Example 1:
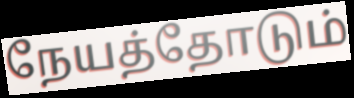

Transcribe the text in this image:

நேயத்தோடும்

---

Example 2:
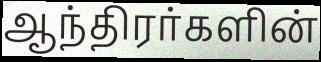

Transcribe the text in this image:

ஆந்திரர்களின்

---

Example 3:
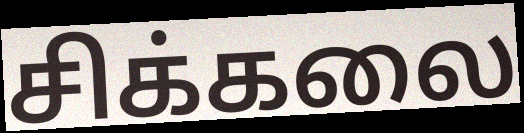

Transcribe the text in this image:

சிக்கலை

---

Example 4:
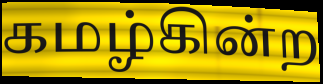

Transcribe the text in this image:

கமழ்கின்ற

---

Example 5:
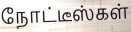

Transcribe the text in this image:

நோட்டீஸ்கள்